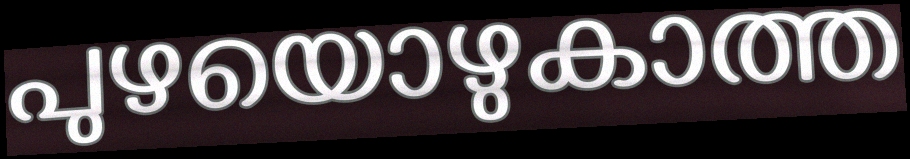
പുഴയൊഴുകാത്ത